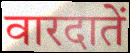
वारदातें